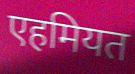
एहमियत